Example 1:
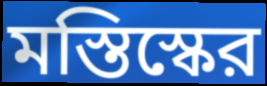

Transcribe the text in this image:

মস্তিস্কের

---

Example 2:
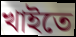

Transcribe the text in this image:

খাইতে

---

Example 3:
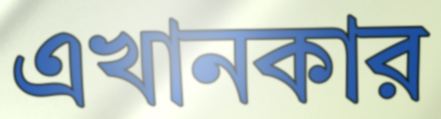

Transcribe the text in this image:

এখানকার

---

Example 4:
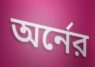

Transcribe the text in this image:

অর্নের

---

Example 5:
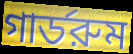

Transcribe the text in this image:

গার্ডরুম